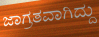
ಜಾಗ್ರತವಾಗಿದ್ದು